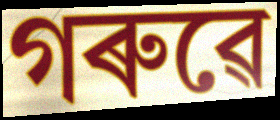
গৰুৱে